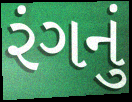
રંગનું